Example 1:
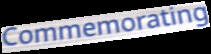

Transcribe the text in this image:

Commemorating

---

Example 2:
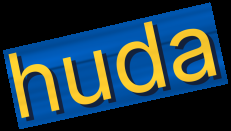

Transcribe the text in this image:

huda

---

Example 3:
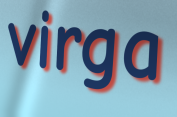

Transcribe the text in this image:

virga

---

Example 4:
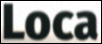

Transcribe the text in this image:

Loca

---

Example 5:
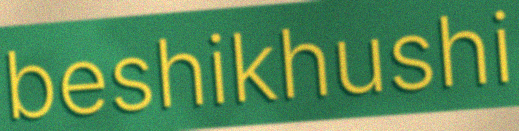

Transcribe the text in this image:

beshikhushi